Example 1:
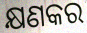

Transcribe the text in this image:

କ୍ଷଣକର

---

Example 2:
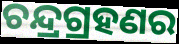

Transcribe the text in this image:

ଚନ୍ଦ୍ରଗ୍ରହଣର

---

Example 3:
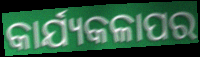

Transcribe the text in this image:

କାର୍ଯ୍ୟକଳାପର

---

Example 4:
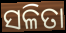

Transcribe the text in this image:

ସଳିତା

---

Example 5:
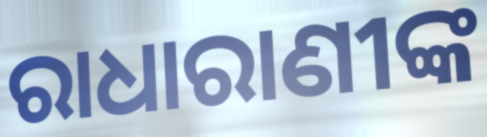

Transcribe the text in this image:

ରାଧାରାଣୀଙ୍କ